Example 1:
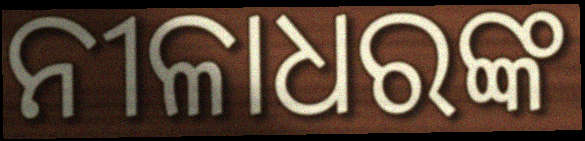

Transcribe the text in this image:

ନୀଳାଧରଙ୍କ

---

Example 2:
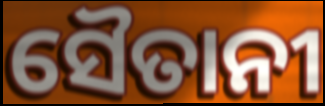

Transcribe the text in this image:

ସୈତାନୀ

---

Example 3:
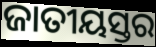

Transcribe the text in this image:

ଜାତୀୟସ୍ତର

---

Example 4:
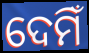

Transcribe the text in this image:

ଦେମିଁ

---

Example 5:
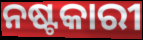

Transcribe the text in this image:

ନଷ୍ଟକାରୀ